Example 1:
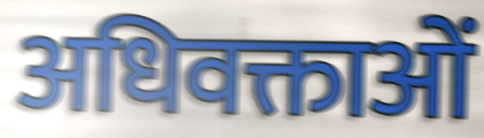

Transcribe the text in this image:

अधिवक्ताओं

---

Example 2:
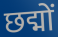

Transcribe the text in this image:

छद्मों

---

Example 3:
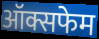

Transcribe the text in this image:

ऑक्सफेम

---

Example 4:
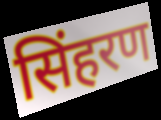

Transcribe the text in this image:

सिंहरण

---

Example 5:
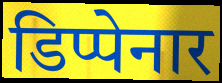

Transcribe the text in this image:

डिप्पेनार